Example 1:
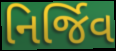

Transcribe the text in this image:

નિર્જિવ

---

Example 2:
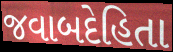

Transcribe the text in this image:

જવાબદેહિતા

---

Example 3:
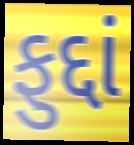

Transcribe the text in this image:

ફુદ્દાં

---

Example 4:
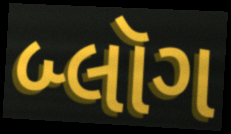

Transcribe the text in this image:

બ્લૉગ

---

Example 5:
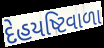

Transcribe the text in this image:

દેહયષ્ટિવાળા